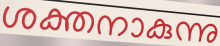
ശക്തനാകുന്നു